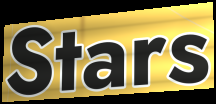
Stars